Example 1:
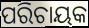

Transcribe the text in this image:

ପରିଚାୟକ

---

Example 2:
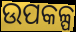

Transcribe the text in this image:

ଉପକଳ୍ପ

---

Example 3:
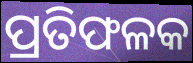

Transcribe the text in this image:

ପ୍ରତିଫଳକ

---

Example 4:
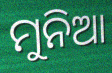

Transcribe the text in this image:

ମୁନିଆ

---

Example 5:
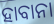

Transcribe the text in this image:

ହାବାନା